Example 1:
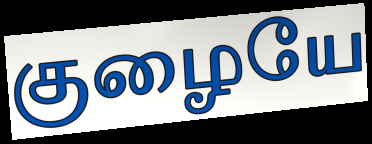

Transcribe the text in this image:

குழையே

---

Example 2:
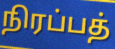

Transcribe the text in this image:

நிரப்பத்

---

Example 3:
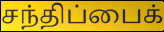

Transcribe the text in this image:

சந்திப்பைக்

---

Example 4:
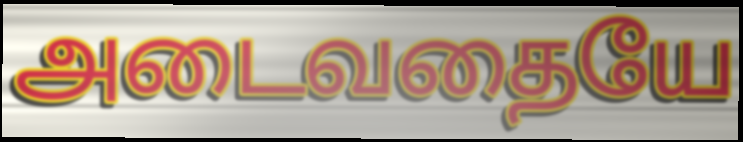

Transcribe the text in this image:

அடைவதையே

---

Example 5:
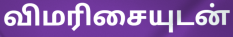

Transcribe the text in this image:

விமரிசையுடன்